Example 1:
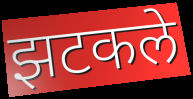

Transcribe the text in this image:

झटकले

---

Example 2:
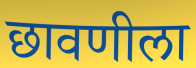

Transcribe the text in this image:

छावणीला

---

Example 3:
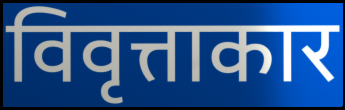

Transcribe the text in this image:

विवृत्ताकार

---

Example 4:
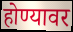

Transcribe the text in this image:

होण्यावर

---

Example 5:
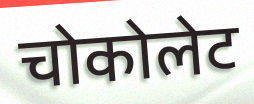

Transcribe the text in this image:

चोकोलेट